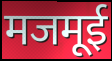
मजमूई